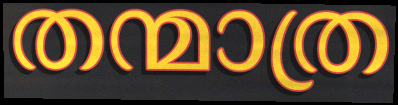
തന്മാത്ര